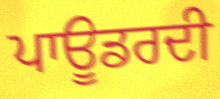
ਪਾਊਡਰਦੀ